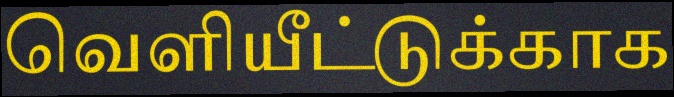
வெளியீட்டுக்காக